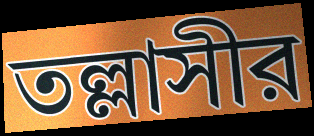
তল্লাসীর